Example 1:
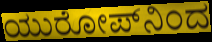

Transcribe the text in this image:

ಯುರೋಪ್‌ನಿಂದ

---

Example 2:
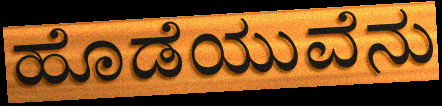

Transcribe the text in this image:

ಹೊಡೆಯುವೆನು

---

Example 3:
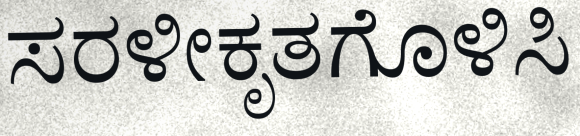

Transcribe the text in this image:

ಸರಳೀಕೃತಗೊಳಿಸಿ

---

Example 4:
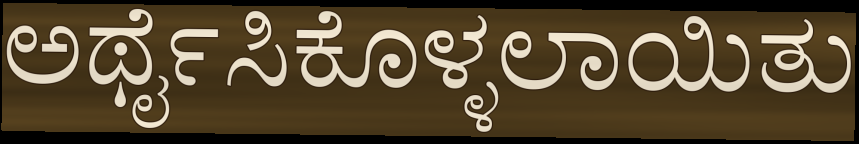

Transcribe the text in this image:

ಅರ್ಥೈಸಿಕೊಳ್ಳಲಾಯಿತು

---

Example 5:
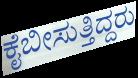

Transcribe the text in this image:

ಕೈಬೀಸುತ್ತಿದ್ದರು